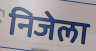
निजेला